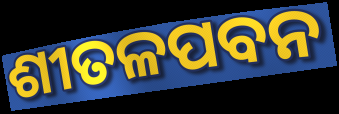
ଶୀତଳପବନ